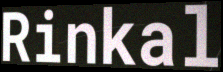
Rinkal